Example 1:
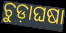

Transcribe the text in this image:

ଚୁଡ଼ାଘଷା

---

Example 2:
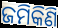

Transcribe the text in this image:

ଜମିକିଣି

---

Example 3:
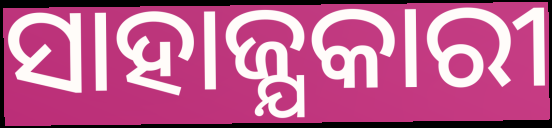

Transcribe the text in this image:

ସାହାଜ୍ଯକାରୀ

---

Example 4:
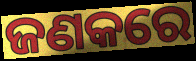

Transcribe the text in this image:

ଜଣକରେ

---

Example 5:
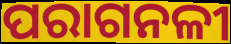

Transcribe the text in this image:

ପରାଗନଳୀ